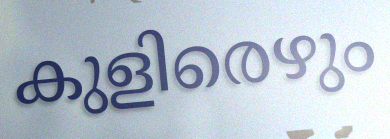
കുളിരെഴും